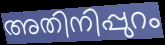
അതിനിപ്പുറം